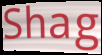
Shag